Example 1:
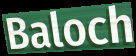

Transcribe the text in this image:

Baloch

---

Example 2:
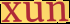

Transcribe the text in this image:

xun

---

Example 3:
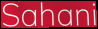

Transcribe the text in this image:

Sahani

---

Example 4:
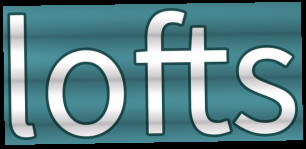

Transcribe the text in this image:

lofts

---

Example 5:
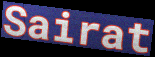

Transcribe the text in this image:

Sairat